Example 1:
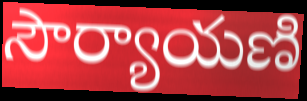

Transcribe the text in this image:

సౌర్యాయణి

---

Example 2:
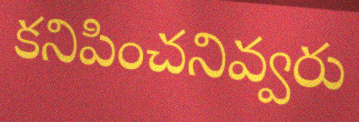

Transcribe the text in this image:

కనిపించనివ్వరు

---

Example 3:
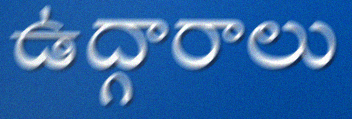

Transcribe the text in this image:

ఉద్గారాలు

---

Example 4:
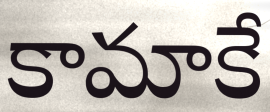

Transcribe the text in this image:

కామాకే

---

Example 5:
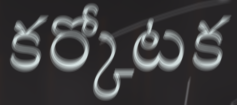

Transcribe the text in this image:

కర్కోటక